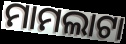
ମାମଲାଟା